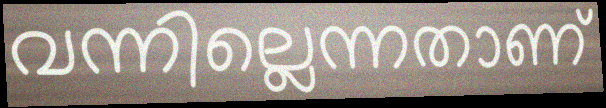
വന്നില്ലെന്നതാണ്